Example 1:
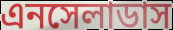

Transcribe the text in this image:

এনসেলাডাস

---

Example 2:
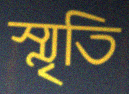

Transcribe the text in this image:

স্মৃতি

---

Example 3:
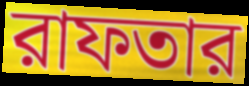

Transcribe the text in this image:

রাফতার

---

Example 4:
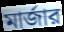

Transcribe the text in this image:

মার্জার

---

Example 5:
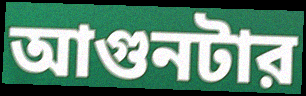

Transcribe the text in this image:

আগুনটার